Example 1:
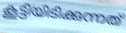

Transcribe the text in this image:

കൂട്ടിയിടിക്കുന്നത്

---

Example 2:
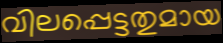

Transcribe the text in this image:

വിലപ്പെട്ടതുമായ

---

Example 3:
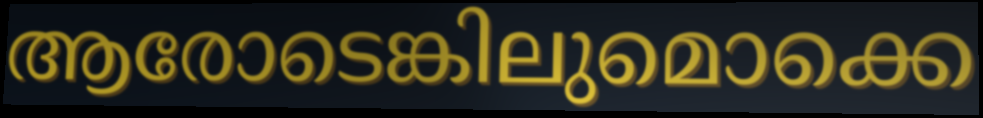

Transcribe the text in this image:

ആരോടെങ്കിലുമൊക്കെ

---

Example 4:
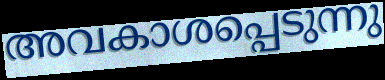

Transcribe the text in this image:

അവകാശപ്പെടുന്നു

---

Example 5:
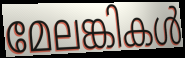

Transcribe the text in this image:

മേലങ്കികൾ